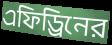
এফিড্রিনের